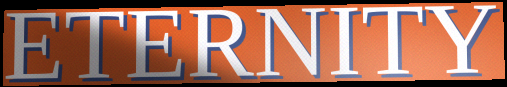
ETERNITY